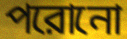
পরোনো